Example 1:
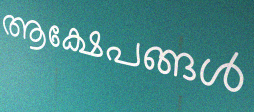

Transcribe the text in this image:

ആക്ഷേപങ്ങൾ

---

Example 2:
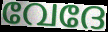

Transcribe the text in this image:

വേദേ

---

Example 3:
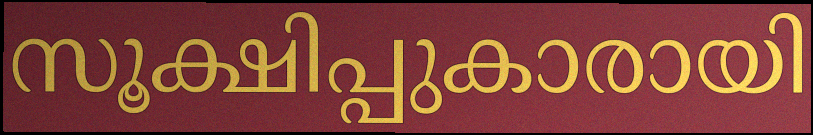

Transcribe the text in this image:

സൂക്ഷിപ്പുകാരായി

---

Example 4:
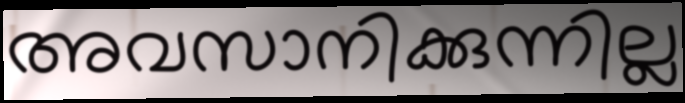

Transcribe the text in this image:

അവസാനിക്കുന്നില്ല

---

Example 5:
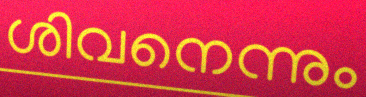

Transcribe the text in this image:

ശിവനെന്നും